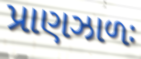
પ્રાણઝાળઃ